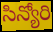
సిన్యోరి